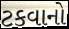
ટકવાનો